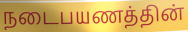
நடைபயணத்தின்